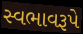
સ્વભાવરૂપે